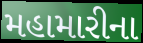
મહામારીના